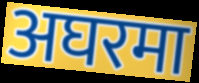
अघरमा